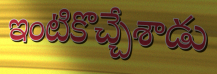
ఇంటికొచ్చేశాడు